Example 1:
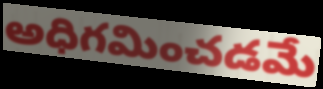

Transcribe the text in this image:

అధిగమించడమే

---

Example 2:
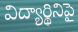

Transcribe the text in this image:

విద్యార్థినిపై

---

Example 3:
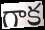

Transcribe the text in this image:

గాక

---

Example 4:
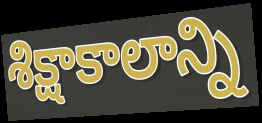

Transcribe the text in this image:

శిక్షాకాలాన్ని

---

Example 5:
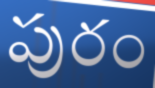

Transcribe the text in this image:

పురం